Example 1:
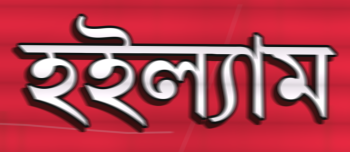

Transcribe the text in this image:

হইল্যাম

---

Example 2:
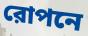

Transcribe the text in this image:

রোপনে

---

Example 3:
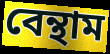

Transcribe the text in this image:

বেন্থাম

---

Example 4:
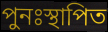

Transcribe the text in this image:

পুনঃস্থাপিত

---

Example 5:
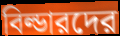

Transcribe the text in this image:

বিল্ডারদের